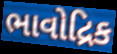
ભાવોદ્રિક